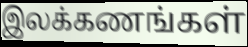
இலக்கணங்கள்